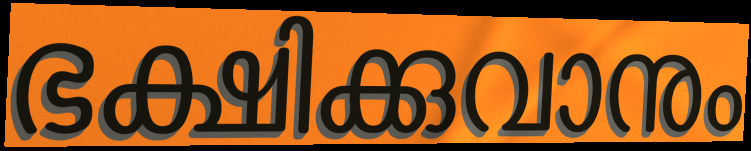
ഭക്ഷിക്കുവാനും